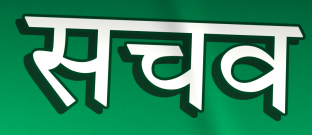
सचव